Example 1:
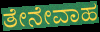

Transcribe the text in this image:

ತೇನೇವಾಹ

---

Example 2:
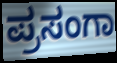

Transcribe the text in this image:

ಪ್ರಸಂಗಾ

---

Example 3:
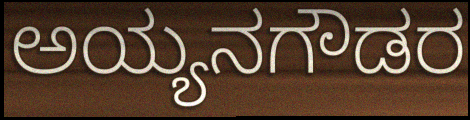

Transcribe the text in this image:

ಅಯ್ಯನಗೌಡರ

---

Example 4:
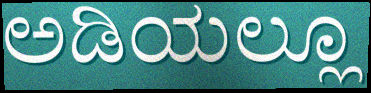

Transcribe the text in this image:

ಅಡಿಯಲ್ಲೂ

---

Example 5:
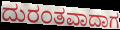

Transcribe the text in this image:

ದುರಂತವಾದಾಗ